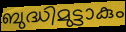
ബുദ്ധിമുട്ടാകും